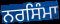
ਨਰਸਿੰਮਾ